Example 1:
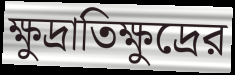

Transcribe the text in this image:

ক্ষুদ্রাতিক্ষুদ্রের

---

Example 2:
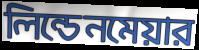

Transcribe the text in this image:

লিন্ডেনমেয়ার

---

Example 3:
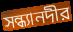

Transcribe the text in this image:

সন্ধ্যানদীর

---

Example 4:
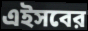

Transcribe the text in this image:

এইসবের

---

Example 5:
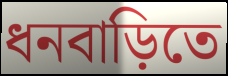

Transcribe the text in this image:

ধনবাড়িতে